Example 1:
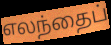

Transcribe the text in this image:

எலந்தைப்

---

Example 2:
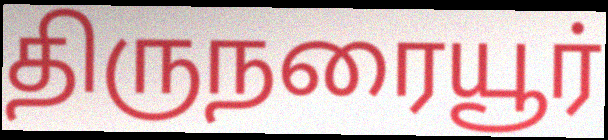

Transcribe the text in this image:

திருநரையூர்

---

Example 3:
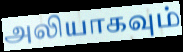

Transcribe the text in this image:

அலியாகவும்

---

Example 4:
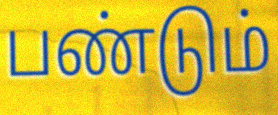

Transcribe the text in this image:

பண்டும்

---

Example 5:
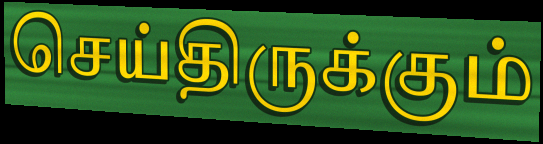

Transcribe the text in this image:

செய்திருக்கும்